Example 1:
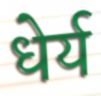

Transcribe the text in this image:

धेर्य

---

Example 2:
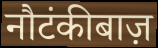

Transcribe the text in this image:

नौटंकीबाज़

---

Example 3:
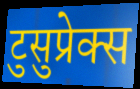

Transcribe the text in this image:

टुसुप्रेक्स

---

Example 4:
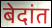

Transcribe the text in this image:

बेदांत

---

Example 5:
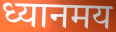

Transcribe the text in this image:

ध्यानमय